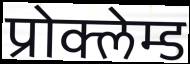
प्रोक्लेम्ड